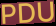
PDU